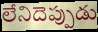
లేనిదెప్పుడు